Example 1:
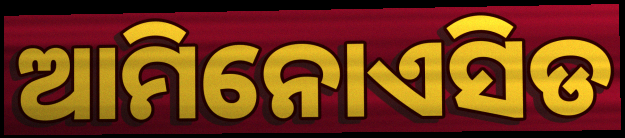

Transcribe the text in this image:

ଆମିନୋଏସିଡ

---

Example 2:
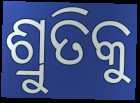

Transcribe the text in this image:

ଶ୍ରୁତିକୁ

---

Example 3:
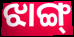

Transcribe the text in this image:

ଝାଙ୍ଗ୍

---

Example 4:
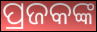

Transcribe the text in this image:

ପ୍ରଜକଙ୍କ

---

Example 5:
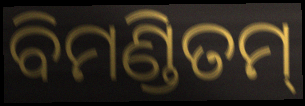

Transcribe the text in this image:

ବିମଣ୍ଡିତମ୍